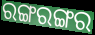
ରଙ୍ଗରଙ୍ଗର